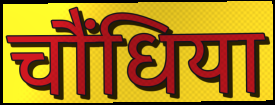
चौंधिया